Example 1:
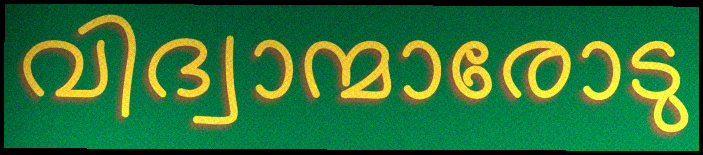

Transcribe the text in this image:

വിദ്വാന്മാരോടു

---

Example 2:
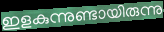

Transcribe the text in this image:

ഇളകുന്നുണ്ടായിരുന്നു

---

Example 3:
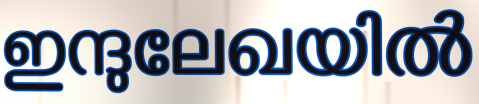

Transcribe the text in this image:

ഇന്ദുലേഖയിൽ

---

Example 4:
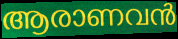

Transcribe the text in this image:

ആരാണവൻ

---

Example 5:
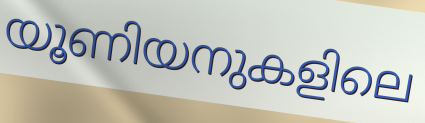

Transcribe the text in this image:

യൂണിയനുകളിലെ